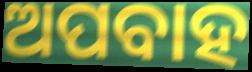
ଅପବାହ